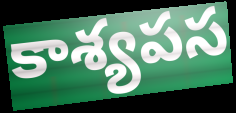
కాశ్యపస